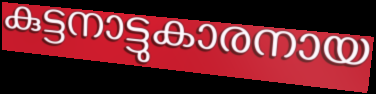
കുട്ടനാട്ടുകാരനായ